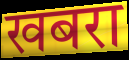
खबरा